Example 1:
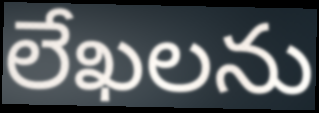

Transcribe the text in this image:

లేఖలను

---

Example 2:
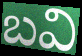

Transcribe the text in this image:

బవి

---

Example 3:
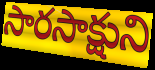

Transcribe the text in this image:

సారసాక్షుని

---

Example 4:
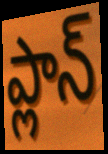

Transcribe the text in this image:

ప్లాన్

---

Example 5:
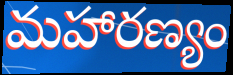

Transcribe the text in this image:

మహారణ్యం